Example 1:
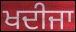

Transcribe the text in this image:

ਖਦੀਜਾ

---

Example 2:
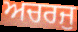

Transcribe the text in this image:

ਅਚਰਜੁ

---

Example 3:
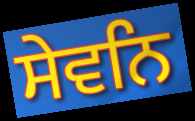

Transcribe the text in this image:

ਸੇਵਨਿ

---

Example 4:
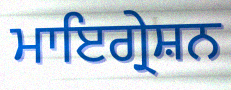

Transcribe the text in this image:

ਮਾਇਗ੍ਰੇਸ਼ਨ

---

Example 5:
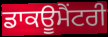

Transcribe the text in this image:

ਡਾਕਊਮੈਂਟਰੀ